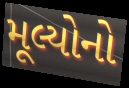
મૂલ્યોનો